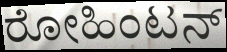
ರೋಹಿಂಟನ್